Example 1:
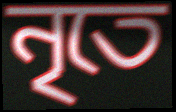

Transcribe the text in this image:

নৃতে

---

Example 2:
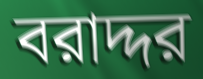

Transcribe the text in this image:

বরাদ্দর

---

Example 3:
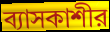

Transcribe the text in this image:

ব্যাসকাশীর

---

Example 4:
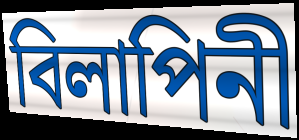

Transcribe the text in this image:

বিলাপিনী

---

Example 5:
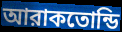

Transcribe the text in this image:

আরাকতোন্ডি